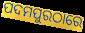
ପଦମପୁରଠାରେ